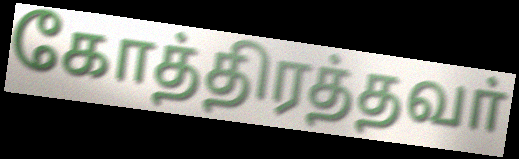
கோத்திரத்தவர்